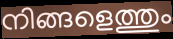
നിങ്ങളെത്തും